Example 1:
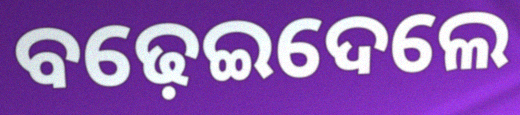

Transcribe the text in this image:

ବଢ଼େଇଦେଲେ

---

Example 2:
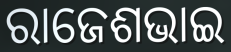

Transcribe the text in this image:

ରାଜେଶଭାଇ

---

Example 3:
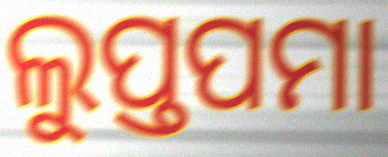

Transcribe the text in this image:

ଲୁପ୍ତପମା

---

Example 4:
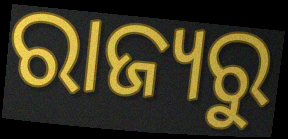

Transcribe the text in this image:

ରାଜ୍ୟରୁ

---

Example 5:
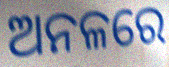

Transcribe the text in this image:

ଅନଳରେ